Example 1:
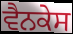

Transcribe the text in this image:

ਵੈਨਕੇਸ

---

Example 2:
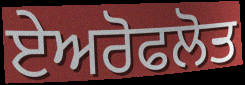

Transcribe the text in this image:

ਏਅਰੋਫਲੋਤ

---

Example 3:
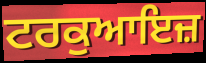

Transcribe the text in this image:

ਟਰਕੁਆਇਜ਼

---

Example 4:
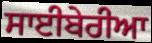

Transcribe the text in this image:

ਸਾਈਬੇਰੀਆ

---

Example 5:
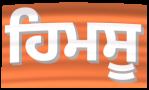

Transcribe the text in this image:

ਹਿਮਸੂ